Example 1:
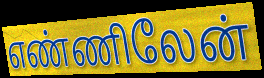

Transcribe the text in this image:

எண்ணிலேன்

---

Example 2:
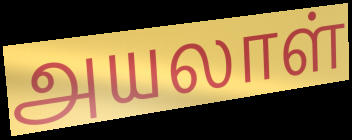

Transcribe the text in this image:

அயலாள்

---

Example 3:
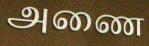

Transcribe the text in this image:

அணை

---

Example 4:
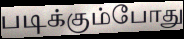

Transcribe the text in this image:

படிக்கும்போது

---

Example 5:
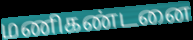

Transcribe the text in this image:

மணிகண்டனை